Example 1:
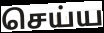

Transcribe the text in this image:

செய்ய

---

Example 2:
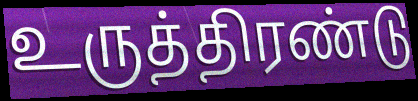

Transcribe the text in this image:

உருத்திரண்டு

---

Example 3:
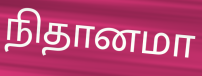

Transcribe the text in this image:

நிதானமா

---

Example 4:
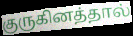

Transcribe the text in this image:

குருகினத்தால்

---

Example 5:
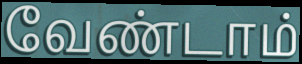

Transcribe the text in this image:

வேண்டாம்